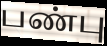
பண்பு